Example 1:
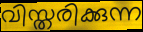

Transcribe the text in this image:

വിസ്തരിക്കുന്ന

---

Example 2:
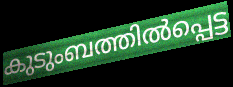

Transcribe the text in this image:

കുടുംബത്തിൽപ്പെട്ട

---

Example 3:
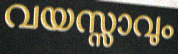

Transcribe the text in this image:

വയസ്സാവും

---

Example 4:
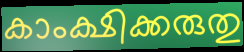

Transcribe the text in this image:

കാംക്ഷിക്കരുതു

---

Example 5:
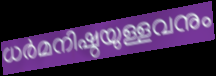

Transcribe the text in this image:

ധർമനിഷ്ഠയുള്ളവനും